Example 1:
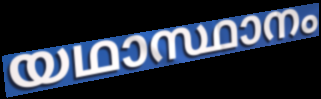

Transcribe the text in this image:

യഥാസ്ഥാനം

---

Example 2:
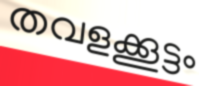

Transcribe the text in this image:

തവളക്കൂട്ടം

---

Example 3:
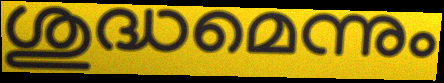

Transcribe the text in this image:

ശുദ്ധമെന്നും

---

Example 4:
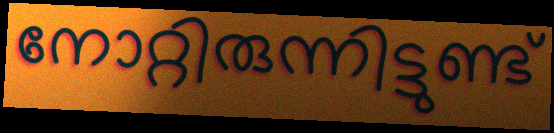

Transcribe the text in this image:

നോറ്റിരുന്നിട്ടുണ്ട്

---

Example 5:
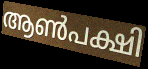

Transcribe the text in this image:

ആൺപക്ഷി